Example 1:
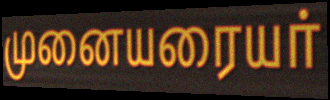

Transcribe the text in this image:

முனையரையர்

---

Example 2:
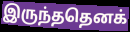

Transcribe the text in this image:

இருந்ததெனக்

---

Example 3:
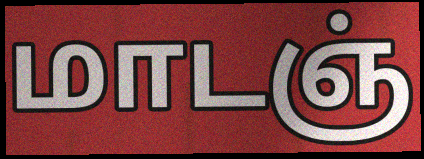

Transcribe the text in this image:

மாடஞ்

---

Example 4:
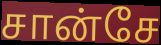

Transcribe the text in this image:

சான்சே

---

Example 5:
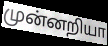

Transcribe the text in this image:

முன்னறியா